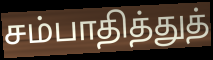
சம்பாதித்துத்